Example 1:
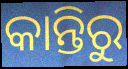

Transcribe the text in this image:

କାନ୍ତିରୁ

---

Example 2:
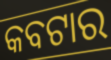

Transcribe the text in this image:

କବଟାର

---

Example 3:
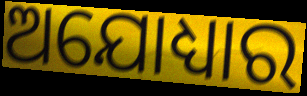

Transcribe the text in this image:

ଅଯୋଧ୍ୟାର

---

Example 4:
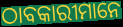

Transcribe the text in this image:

ଠାବକାରୀମାନେ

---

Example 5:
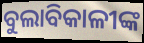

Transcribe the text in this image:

ବୁଲାବିକାଳୀଙ୍କ